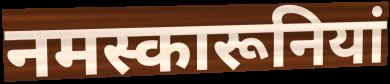
नमस्कारूनियां